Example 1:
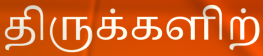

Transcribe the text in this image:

திருக்களிற்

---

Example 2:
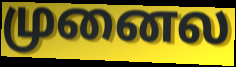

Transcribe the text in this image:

முனைல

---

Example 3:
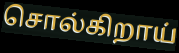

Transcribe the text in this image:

சொல்கிறாய்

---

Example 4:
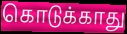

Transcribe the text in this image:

கொடுக்காது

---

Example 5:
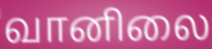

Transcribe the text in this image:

வானிலை